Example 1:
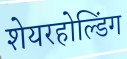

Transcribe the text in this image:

शेयरहोल्डिंग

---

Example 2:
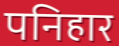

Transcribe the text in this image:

पनिहार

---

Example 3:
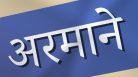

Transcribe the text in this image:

अरमाने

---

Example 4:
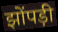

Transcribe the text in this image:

झोंपड़ी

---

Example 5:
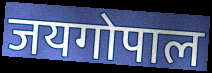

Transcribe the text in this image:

जयगोपाल